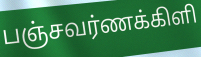
பஞ்சவர்ணக்கிளி